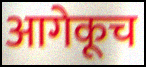
आगेकूच